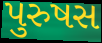
પુરુષસ